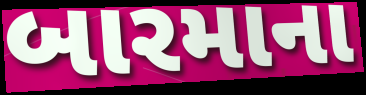
બારમાના